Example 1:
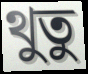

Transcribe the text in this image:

থুতু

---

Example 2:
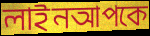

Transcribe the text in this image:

লাইনআপকে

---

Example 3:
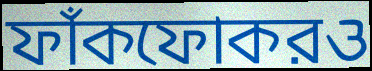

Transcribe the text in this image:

ফাঁকফোকরও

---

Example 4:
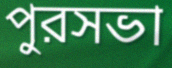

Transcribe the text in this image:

পুরসভা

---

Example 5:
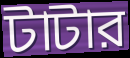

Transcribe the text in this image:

টাটার